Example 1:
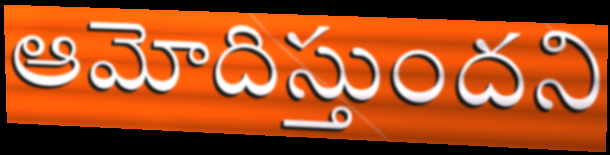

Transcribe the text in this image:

ఆమోదిస్తుందని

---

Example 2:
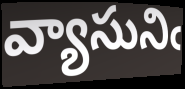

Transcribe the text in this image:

వ్యాసునిఁ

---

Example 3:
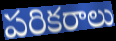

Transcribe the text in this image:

పరికరాలు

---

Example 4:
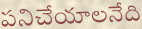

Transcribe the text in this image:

పనిచేయాలనేది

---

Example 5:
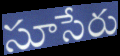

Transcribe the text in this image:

సూసేరు